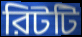
রিটটি